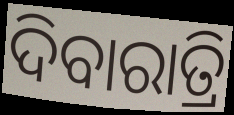
ଦିବାରାତ୍ରି